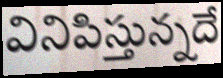
వినిపిస్తున్నదే